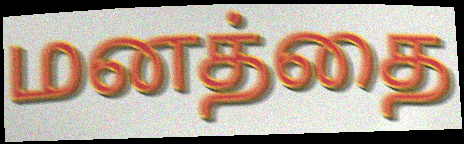
மனத்தை